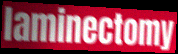
laminectomy